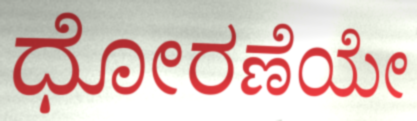
ಧೋರಣೆಯೇ